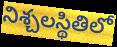
నిశ్చలస్థితిలో